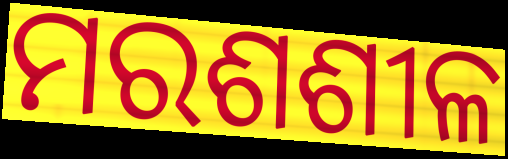
ମରଶଶୀଳ